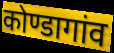
कोण्डागांव